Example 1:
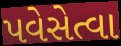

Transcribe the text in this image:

પવેસેત્વા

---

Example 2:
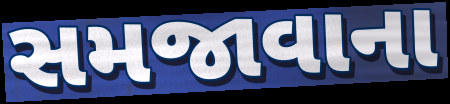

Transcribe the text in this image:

સમજાવાના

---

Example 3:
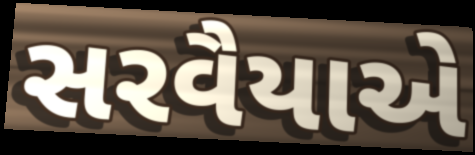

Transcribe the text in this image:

સરવૈયાએ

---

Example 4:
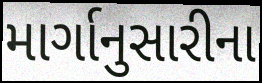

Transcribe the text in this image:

માર્ગાનુસારીના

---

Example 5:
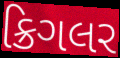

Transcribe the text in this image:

ક્રિગલર